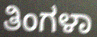
ತಿಂಗಳಾ